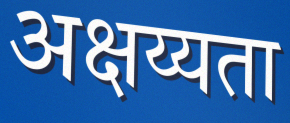
अक्षय्यता